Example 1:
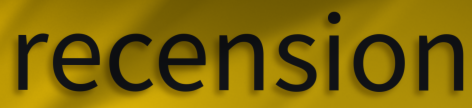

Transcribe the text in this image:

recension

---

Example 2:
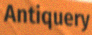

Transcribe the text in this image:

Antiquery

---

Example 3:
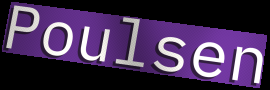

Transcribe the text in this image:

Poulsen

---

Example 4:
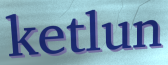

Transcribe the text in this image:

ketlun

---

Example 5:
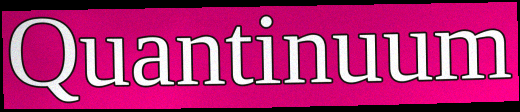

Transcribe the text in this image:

Quantinuum